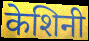
केशिनी